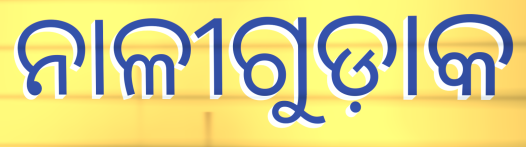
ନାଳୀଗୁଡ଼ାକ